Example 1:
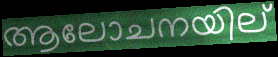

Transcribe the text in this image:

ആലോചനയില്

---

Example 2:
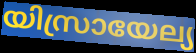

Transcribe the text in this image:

യിസ്രായേല്യ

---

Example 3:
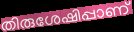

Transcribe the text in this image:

തിരുശേഷിപ്പാണ്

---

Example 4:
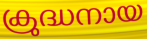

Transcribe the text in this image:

ക്രുദ്ധനായ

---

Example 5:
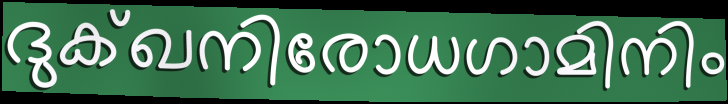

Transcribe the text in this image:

ദുക്ഖനിരോധഗാമിനിം